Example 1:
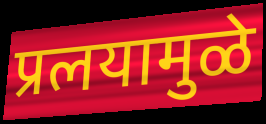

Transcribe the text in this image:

प्रलयामुळे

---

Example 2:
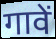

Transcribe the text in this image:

गावें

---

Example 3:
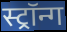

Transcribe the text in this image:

स्ट्रॉन्ग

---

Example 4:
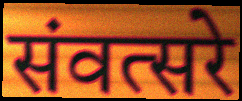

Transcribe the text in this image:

संवत्सरे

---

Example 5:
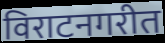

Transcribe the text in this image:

विराटनगरीत